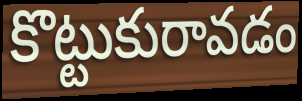
కొట్టుకురావడం